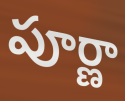
పూర్ణా